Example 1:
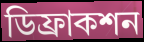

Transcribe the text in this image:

ডিফ্রাকশন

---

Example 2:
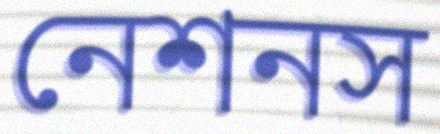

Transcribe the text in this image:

নেশনস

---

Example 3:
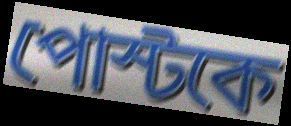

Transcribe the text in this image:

পোস্টকে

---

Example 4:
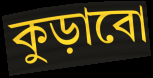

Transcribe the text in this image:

কুড়াবো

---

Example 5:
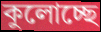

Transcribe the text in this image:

কুলোচ্ছে